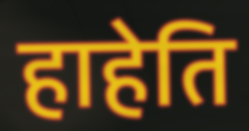
हाहेति